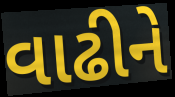
વાઢીને